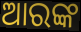
ଆରଙ୍କ